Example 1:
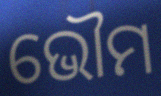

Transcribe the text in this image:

ଭୌମ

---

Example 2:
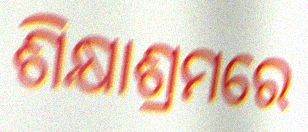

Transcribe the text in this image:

ଶିକ୍ଷାଶ୍ରମରେ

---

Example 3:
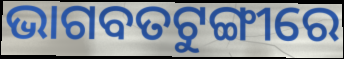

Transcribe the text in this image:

ଭାଗବତଟୁଙ୍ଗୀରେ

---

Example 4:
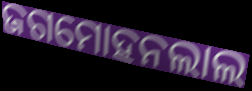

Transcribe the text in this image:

ଜଗମୋହନଲାଲ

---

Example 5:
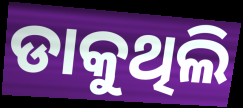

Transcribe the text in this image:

ଡାକୁଥିଲି